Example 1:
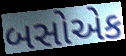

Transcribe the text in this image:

બસોએક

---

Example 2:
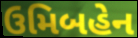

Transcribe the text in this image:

ઉમિબહેન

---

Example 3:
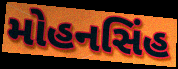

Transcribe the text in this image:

મોહનસિંહ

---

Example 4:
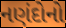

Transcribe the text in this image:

નણંદોનો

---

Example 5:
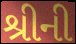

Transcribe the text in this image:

શ્રીની